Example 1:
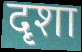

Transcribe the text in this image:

दृशा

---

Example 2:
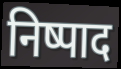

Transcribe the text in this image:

निष्पाद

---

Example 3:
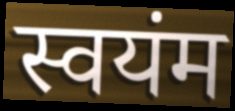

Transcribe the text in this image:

स्वयंम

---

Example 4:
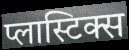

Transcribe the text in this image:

प्लास्टिक्स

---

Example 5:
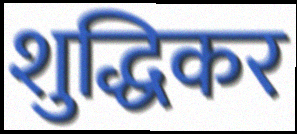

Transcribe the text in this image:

शुद्धिकर